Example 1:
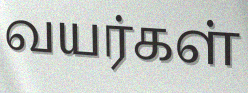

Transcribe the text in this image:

வயர்கள்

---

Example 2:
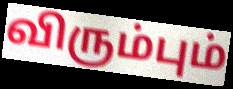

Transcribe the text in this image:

விரும்பும்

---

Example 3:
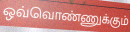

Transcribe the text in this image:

ஒவ்வொண்ணுக்கும்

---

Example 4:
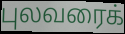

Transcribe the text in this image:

புலவரைக்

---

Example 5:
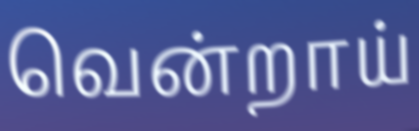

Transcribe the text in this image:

வென்றாய்